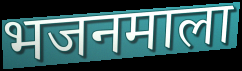
भजनमाला